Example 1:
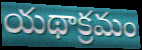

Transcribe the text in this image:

యథాక్రమం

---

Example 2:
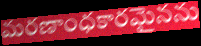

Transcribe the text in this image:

మరణాంధకారమైనను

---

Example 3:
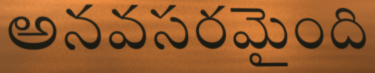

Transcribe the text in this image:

అనవసరమైంది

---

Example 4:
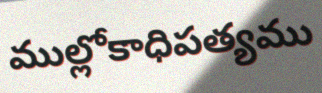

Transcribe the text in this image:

ముల్లోకాధిపత్యము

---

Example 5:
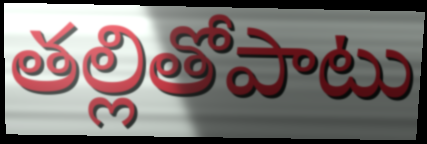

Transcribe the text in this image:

తల్లితోపాటు